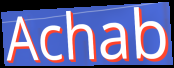
Achab